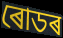
ৰোডৰ